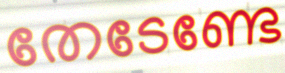
തേടേണ്ടേ